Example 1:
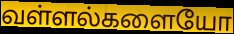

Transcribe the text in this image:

வள்ளல்களையோ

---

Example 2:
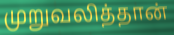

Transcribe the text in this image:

முறுவலித்தான்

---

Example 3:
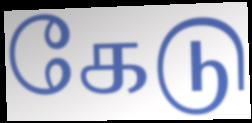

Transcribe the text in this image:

கேடு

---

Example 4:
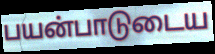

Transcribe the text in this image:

பயன்பாடுடைய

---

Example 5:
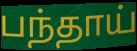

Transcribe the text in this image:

பந்தாய்